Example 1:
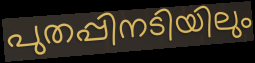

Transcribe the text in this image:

പുതപ്പിനടിയിലും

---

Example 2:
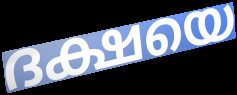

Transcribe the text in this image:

ദക്ഷയെ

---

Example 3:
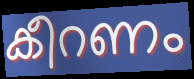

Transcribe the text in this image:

കീറണം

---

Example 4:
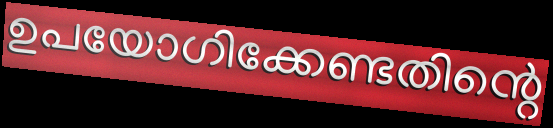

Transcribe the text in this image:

ഉപയോഗിക്കേണ്ടതിന്റെ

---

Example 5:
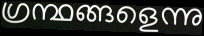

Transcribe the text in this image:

ഗ്രന്ഥങ്ങളെന്നു